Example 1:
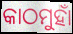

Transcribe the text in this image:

କାଠମୁହାଁ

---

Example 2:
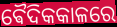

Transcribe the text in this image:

ଵୈଦିକକାଳରେ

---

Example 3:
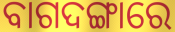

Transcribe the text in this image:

ବାଗଦଙ୍ଗାରେ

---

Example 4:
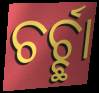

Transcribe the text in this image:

ଚର୍ଚ୍ଛା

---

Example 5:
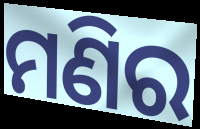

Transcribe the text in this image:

ମଣିର